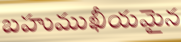
బహుముఖీయమైన